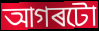
আগৰটো